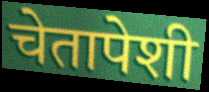
चेतापेशी